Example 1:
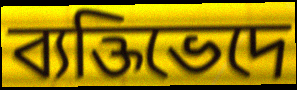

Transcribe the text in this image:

ব্যক্তিভেদে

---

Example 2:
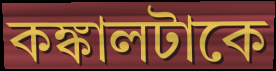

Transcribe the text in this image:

কঙ্কালটাকে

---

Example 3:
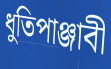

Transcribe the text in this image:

ধুতিপাঞ্জাবী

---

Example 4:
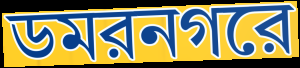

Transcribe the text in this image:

ডমরনগরে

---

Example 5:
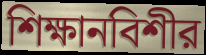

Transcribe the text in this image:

শিক্ষানবিশীর